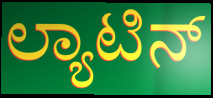
ಲ್ಯಾಟಿನ್